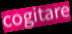
cogitare